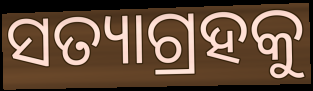
ସତ୍ୟାଗ୍ରହକୁ